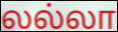
லல்லா